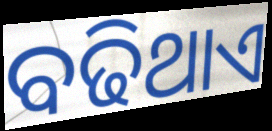
ବଢିଥାଏ